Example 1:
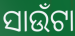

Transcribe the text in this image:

ସାଉଁଟା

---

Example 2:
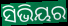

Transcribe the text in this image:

ସିଭିୟର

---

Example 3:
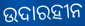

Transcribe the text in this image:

ଉଦାରହୀନ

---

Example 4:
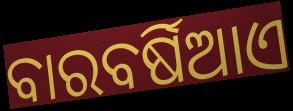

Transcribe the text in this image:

ବାରବର୍ଷିଆଏ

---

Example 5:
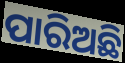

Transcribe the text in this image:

ପାରିଅଛି